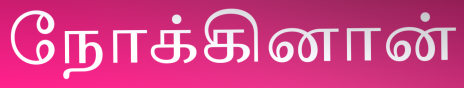
நோக்கினான்